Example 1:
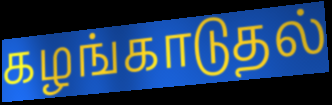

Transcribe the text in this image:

கழங்காடுதல்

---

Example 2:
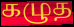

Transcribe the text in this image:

கழுத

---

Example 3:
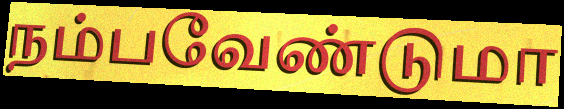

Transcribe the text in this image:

நம்பவேண்டுமா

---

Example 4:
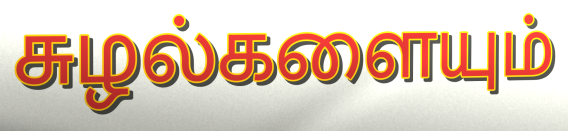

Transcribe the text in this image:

சுழல்களையும்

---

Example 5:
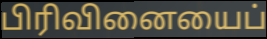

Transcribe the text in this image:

பிரிவினையைப்